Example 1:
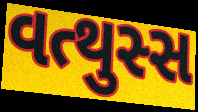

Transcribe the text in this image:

વત્થુસ્સ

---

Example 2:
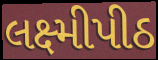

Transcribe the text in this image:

લક્ષ્મીપીઠ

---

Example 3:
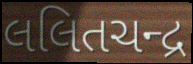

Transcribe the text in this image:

લલિતચન્દ્ર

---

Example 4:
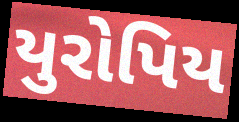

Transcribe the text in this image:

યુરોપિય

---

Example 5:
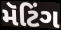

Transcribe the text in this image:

મૅટિંગ